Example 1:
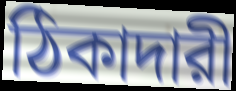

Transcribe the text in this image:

ঠিকাদারী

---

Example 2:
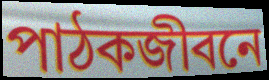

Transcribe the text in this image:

পাঠকজীবনে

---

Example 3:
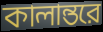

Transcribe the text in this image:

কালান্তরে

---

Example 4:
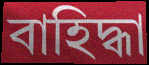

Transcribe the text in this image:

বাহিদ্ধা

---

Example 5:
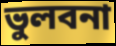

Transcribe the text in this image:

ভুলবনা